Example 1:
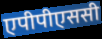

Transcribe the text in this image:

एपीपीएससी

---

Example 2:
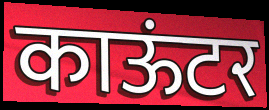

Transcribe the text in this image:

काऊंटर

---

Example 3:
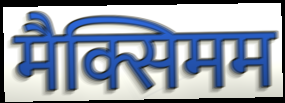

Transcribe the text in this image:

मैक्सिमम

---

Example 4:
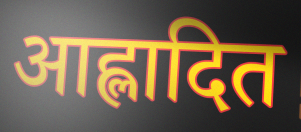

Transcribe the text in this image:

आह्लादित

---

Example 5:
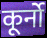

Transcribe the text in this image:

कूर्नो